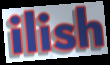
ilish